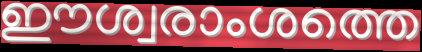
ഈശ്വരാംശത്തെ